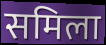
समिला